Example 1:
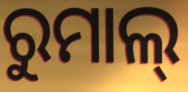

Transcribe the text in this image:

ରୁମାଲ୍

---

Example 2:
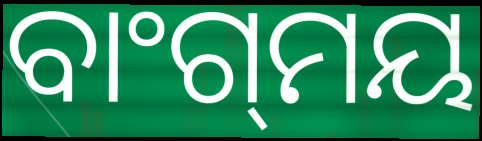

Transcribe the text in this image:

ବାଂଗ୍‌ମୟ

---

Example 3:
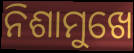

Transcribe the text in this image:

ନିଶାମୁଖେ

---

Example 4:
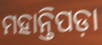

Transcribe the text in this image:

ମହାନ୍ତିପଡ଼ା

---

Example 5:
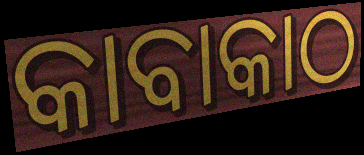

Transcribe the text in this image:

କାବାକାଠ